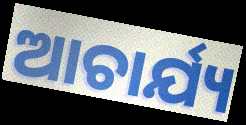
ଆଚାର୍ଯ୍ୟ